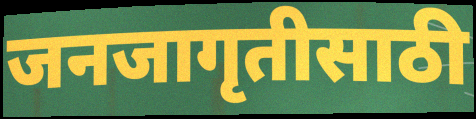
जनजागृतीसाठी